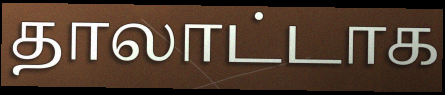
தாலாட்டாக